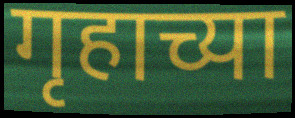
गृहाच्या